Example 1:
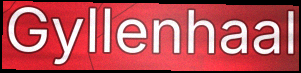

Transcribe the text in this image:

Gyllenhaal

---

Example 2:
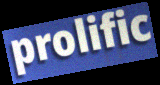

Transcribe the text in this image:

prolific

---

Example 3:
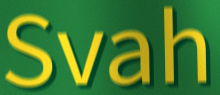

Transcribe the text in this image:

Svah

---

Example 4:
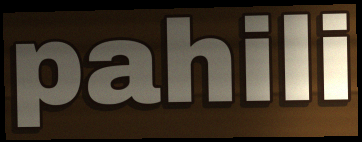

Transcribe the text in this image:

pahili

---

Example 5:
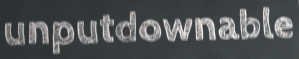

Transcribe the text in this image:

unputdownable